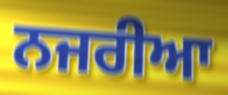
ਨਜਰੀਆ